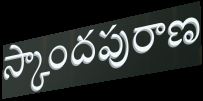
స్కాందపురాణ